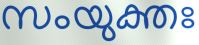
സംയുക്തഃ